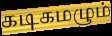
கடிகமழும்